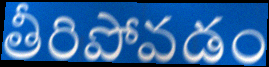
తీరిపోవడం